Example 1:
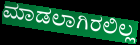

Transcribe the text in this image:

ಮಾಡಲಾಗಿರಲಿಲ್ಲ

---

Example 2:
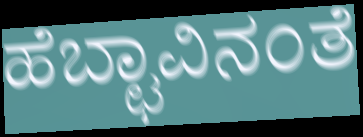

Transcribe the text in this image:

ಹೆಬ್ಟಾವಿನಂತೆ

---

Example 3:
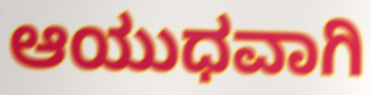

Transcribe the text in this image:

ಆಯುಧವಾಗಿ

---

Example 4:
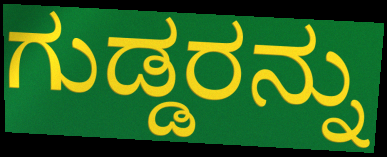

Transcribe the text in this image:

ಗುಡ್ಡರನ್ನು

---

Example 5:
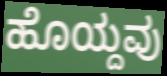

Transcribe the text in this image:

ಹೊಯ್ದವು